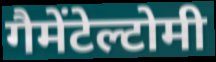
गैमेंटेल्टोमी